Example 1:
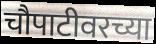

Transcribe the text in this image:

चौपाटीवरच्या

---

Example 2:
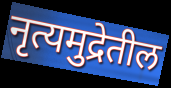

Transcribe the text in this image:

नृत्यमुद्रेतील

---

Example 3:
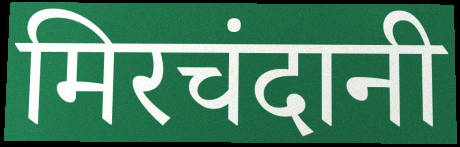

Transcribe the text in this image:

मिरचंदानी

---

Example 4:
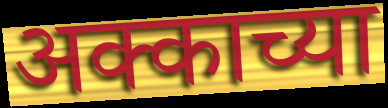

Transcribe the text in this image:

अक्काच्या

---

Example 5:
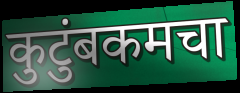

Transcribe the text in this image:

कुटुंबकमचा